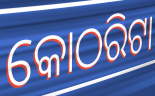
କୋଠରିଟା